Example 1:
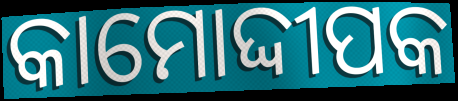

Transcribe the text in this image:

କାମୋଦ୍ଦୀପକ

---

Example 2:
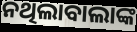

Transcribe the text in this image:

ନଥିଲାବାଲାଙ୍କ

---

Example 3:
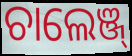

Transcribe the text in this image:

ଚାଲେଞ୍ଜ୍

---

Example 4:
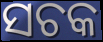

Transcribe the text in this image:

ସଚକ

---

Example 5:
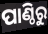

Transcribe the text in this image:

ପାଣ୍ଠିରୁ